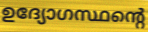
ഉദ്യോഗസ്ഥന്റെ